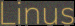
Linus